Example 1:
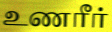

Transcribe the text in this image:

உணரீர்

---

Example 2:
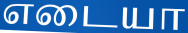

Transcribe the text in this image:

எடையா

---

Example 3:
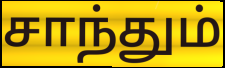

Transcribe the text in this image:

சாந்தும்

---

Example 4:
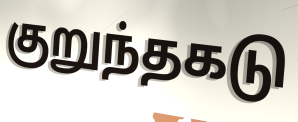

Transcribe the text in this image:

குறுந்தகடு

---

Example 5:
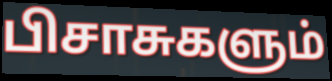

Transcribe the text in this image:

பிசாசுகளும்